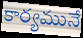
కార్యమునే